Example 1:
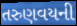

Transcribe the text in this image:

તરુણવયની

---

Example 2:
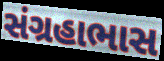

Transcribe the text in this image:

સંગ્રહાભાસ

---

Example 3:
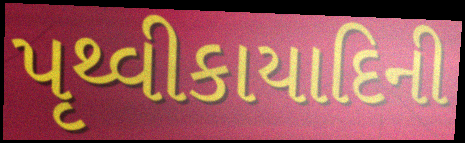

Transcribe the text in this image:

પૃથ્વીકાયાદિની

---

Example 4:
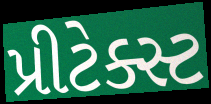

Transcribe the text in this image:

પ્રીટેક્સ્ટ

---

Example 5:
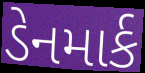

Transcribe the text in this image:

ડેનમાર્ક